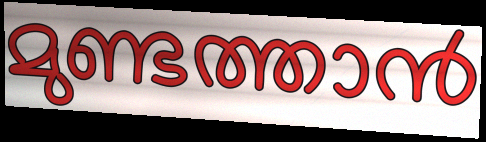
മുണ്ടത്താൻ